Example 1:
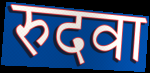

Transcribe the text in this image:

रुदवा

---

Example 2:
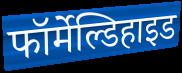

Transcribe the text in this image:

फॉर्मेल्डिहाइड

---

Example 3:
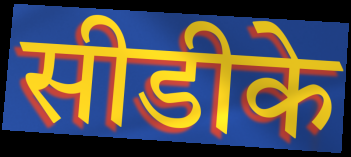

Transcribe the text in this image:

सीडीके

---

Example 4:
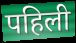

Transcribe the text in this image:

पहिली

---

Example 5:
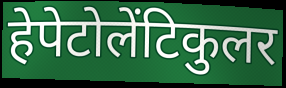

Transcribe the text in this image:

हेपेटोलेंटिकुलर